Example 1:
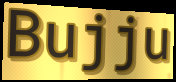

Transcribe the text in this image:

Bujju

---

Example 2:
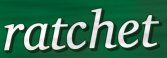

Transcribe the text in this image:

ratchet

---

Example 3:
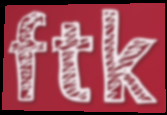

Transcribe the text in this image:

ftk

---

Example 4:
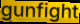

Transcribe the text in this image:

gunfight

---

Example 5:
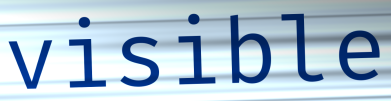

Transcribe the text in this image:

visible